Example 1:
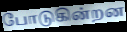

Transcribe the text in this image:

போடுகின்றன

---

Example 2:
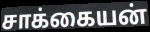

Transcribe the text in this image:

சாக்கையன்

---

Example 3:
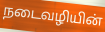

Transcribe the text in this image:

நடைவழியின்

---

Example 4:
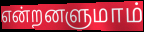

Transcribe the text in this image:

என்றனளுமாம்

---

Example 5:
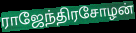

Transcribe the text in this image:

ராஜேந்திரசோழன்